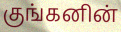
குங்கனின்